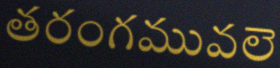
తరంగమువలె